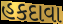
હકદાવા